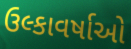
ઉલ્કાવર્ષાઓ